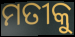
ମତୀକୁ